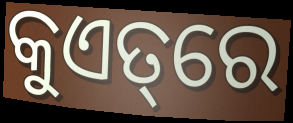
କୁଏତ୍‌ରେ